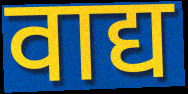
वाद्य